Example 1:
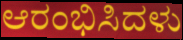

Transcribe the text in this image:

ಆರಂಭಿಸಿದಳು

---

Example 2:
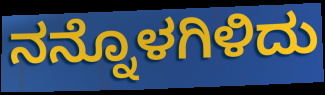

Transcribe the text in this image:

ನನ್ನೊಳಗಿಳಿದು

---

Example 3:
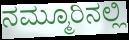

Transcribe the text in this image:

ನಮ್ಮೂರಿನಲ್ಲಿ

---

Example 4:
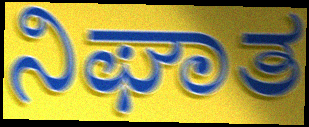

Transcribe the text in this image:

ನಿಘಾತ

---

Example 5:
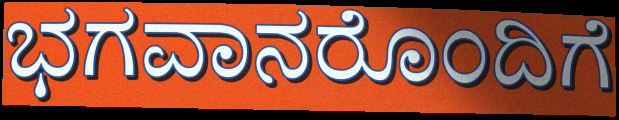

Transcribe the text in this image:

ಭಗವಾನರೊಂದಿಗೆ